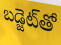
బడ్జెట్‌తో